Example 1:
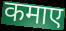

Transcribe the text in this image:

कमाए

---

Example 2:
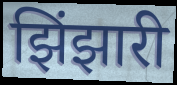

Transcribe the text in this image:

झिंझारी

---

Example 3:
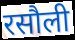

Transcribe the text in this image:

रसौली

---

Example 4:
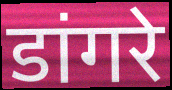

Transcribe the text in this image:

डांगरे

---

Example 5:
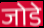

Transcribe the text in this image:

जोडे